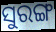
ସୁରଙ୍ଗ